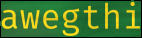
awegthi